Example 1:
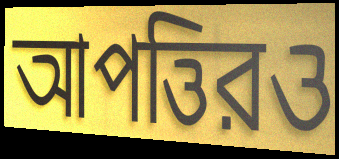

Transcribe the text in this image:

আপত্তিরও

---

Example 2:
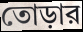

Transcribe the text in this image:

তোড়ার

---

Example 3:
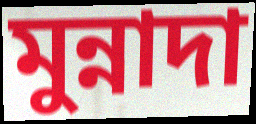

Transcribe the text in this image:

মুন্নাদা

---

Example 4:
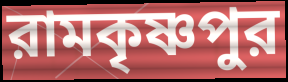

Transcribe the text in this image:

রামকৃষ্ণপুর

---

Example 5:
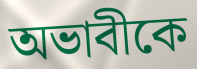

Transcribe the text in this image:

অভাবীকে